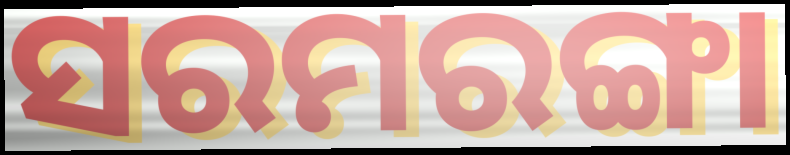
ସରମରଙ୍ଗା